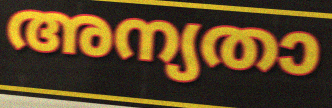
അന്യതാ